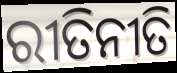
ରୀତିନୀତି